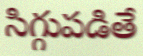
సిగ్గుపడితే